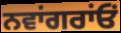
ਨਵਾਂਗਰਾਂਓਂ